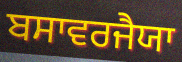
ਬਸਾਵਰਜੈਯਾ